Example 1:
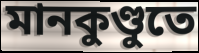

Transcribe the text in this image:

মানকুণ্ডুতে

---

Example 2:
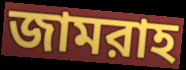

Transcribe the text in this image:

জামরাহ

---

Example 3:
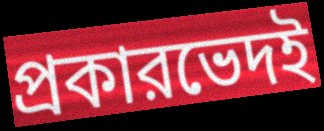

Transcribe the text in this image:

প্রকারভেদই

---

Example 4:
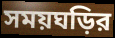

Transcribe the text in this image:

সময়ঘড়ির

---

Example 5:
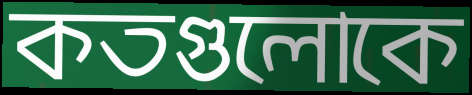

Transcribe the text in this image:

কতগুলোকে